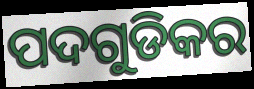
ପଦଗୁଡିକର